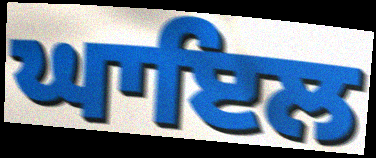
ਘਾਇਲ